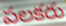
పలకరు